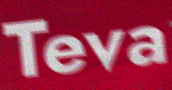
Teva